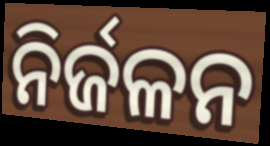
ନିର୍ଜଳନ